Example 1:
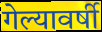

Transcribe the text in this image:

गेल्यावर्षी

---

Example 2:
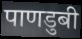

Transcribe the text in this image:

पाणडुबी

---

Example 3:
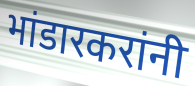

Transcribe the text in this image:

भांडारकरांनी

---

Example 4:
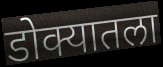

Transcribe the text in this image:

डोक्यातला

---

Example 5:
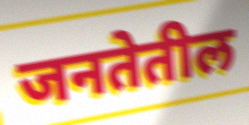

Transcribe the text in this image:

जनतेतील